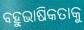
ବହୁଭାଷିକତାକୁ